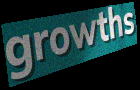
growths